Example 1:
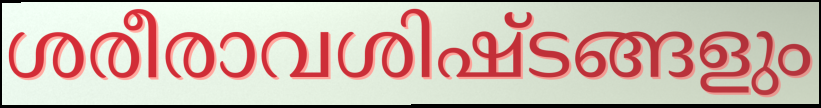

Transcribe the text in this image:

ശരീരാവശിഷ്ടങ്ങളും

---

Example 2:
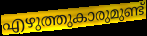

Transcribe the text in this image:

എഴുത്തുകാരുമുണ്ട്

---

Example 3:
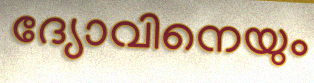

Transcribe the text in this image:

ദ്യോവിനെയും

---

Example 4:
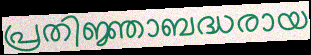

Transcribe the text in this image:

പ്രതിജ്ഞാബദ്ധരായ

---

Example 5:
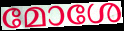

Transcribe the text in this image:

മോശേ